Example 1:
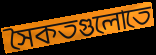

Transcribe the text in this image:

সৈকতগুলোতে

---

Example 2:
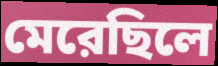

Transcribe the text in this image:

মেরেছিলে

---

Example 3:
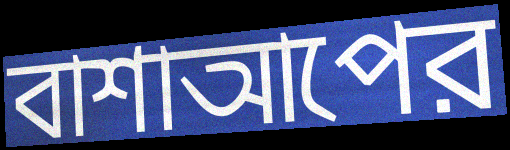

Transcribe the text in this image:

বাশাআপের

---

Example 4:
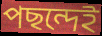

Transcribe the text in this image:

পছন্দেই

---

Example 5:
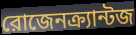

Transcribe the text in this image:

রোজেনক্র্যান্টজ